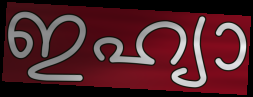
ഇഹ്യാ